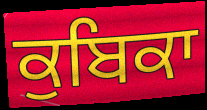
ਕੁਬਿਕਾ